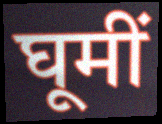
घूमीं